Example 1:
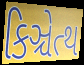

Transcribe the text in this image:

કિઞ્ચેત્થ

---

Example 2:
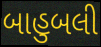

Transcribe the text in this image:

બાહુબલી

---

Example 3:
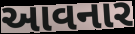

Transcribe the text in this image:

આવનાર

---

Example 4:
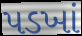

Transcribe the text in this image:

પડખાં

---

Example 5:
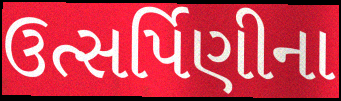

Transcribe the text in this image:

ઉત્સર્પિણીના